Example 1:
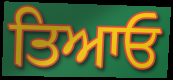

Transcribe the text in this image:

ਤਿਆਓ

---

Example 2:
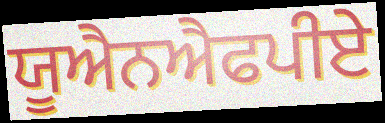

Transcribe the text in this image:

ਯੂਐਨਐਫਪੀਏ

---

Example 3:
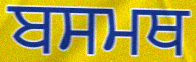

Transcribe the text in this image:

ਬਸਮਥ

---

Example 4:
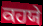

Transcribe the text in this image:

ਕਹਯੇ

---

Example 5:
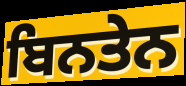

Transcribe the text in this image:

ਬਿਨਤੇਨ